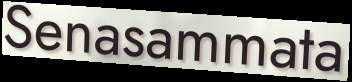
Senasammata